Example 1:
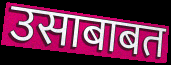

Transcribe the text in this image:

उसाबाबत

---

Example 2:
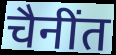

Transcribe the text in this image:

चैनींत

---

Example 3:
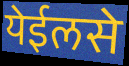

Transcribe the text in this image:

येईलसे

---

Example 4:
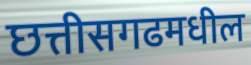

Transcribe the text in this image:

छत्तीसगढमधील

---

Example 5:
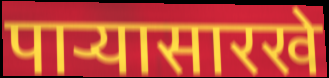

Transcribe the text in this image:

पाऱ्यासारखे